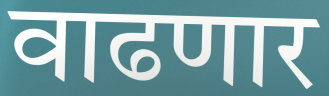
वाढणार